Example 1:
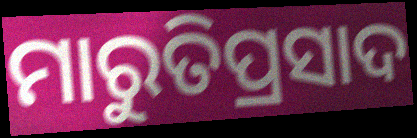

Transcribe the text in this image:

ମାରୁତିପ୍ରସାଦ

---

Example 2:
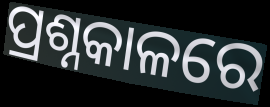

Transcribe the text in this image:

ପ୍ରଶ୍ନକାଳରେ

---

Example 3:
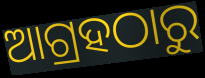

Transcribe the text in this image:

ଆଗ୍ରହଠାରୁ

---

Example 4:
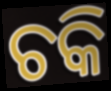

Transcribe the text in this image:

ଚକି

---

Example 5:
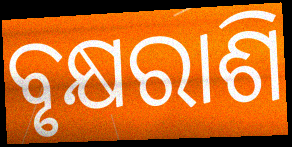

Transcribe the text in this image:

ବୃକ୍ଷରାଶି